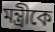
মন্ত্রীকে